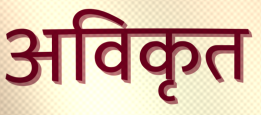
अविकृत